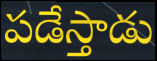
పడేస్తాడు